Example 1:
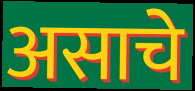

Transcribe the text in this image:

असाचे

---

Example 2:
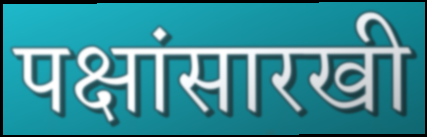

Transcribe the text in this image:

पक्षांसारखी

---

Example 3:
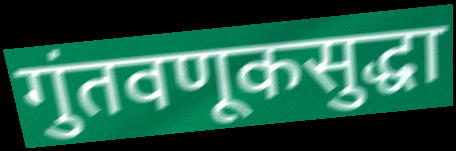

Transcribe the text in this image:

गुंतवणूकसुद्धा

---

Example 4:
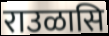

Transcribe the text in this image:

राउळासि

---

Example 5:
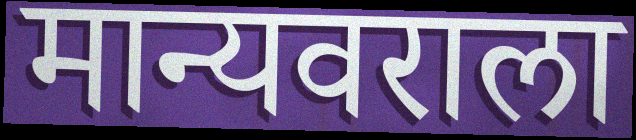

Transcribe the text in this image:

मान्यवराला